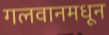
गलवानमधून